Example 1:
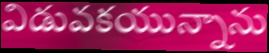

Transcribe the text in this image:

విడువకయున్నాను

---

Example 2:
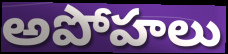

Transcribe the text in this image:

అపోహలు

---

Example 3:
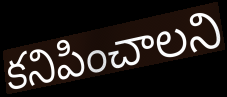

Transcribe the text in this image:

కనిపించాలని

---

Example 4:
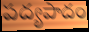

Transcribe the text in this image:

పద్యపాదం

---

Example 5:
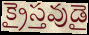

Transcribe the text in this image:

క్రైస్తవుడై